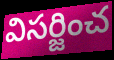
విసర్జించ